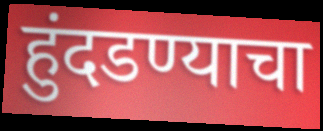
हुंदडण्याचा